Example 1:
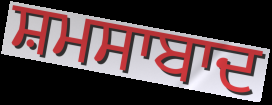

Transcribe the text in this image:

ਸ਼ਮਸਾਬਾਦ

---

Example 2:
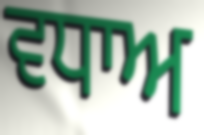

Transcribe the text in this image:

ਵਧਾਅ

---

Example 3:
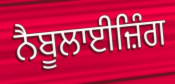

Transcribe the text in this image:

ਨੈਬੂਲਾਈਜ਼ਿੰਗ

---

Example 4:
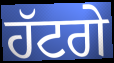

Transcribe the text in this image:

ਹੱਟਗੇ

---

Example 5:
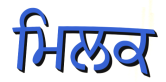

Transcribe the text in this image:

ਮਿਲਕ